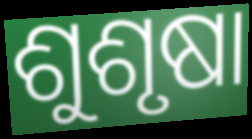
ଶୁଶୃଷା